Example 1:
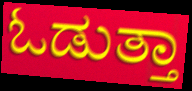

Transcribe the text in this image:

ಓಡುತ್ತಾ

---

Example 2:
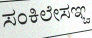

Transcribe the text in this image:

ಸಂಕಿಲೇಸಞ್ಚ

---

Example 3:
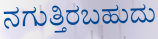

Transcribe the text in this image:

ನಗುತ್ತಿರಬಹುದು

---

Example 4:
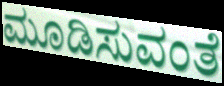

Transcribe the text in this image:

ಮೂಡಿಸುವಂತೆ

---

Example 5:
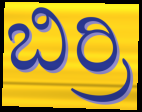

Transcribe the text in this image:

ಬಿರ್ರಿ